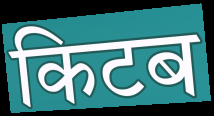
किटब